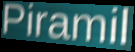
Piramil